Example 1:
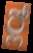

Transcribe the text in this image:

ర్లో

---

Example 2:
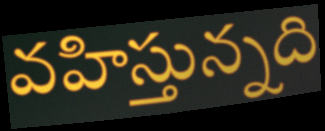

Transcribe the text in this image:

వహిస్తున్నది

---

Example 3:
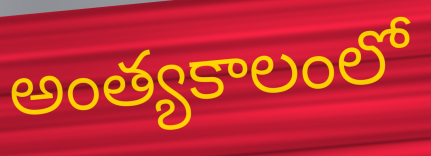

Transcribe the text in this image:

అంత్యకాలంలో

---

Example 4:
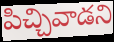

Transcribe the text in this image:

పిచ్చివాడని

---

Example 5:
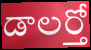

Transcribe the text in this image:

డాలర్తో